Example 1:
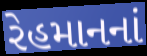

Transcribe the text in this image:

રેહમાનનાં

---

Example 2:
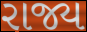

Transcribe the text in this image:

રાજ્ય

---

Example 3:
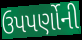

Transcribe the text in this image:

ઉપપર્ણોની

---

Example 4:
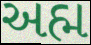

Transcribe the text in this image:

અહ્મ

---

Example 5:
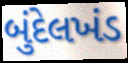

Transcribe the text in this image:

બુંદેલખંડ